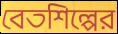
বেতশিল্পের